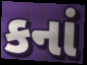
કનાં